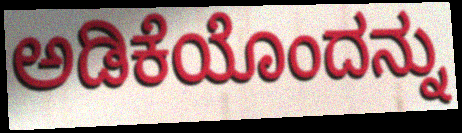
ಅಡಿಕೆಯೊಂದನ್ನು